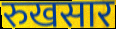
रुखसार